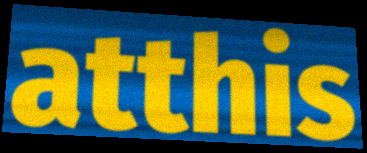
atthis